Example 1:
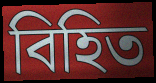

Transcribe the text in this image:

বিহিত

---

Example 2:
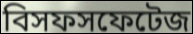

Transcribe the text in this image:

বিসফসফেটেজ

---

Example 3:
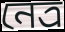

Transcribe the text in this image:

নেত্র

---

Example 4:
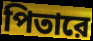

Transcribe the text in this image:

পিতারে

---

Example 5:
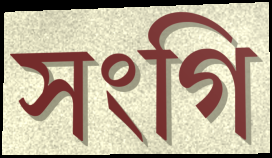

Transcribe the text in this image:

সংগি